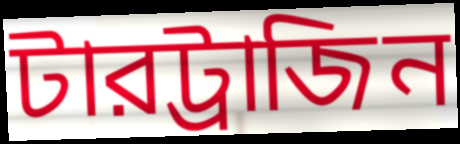
টারট্রাজিন